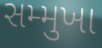
સમ્મુખા